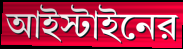
আইস্টাইনের